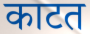
काटत